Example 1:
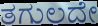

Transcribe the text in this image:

ತಗುಲದೇ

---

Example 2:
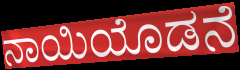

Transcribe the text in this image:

ನಾಯಿಯೊಡನೆ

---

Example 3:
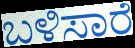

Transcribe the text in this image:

ಬಳಿಸಾರೆ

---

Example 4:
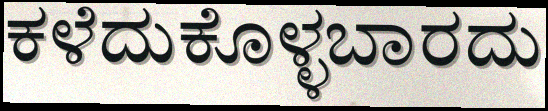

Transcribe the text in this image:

ಕಳೆದುಕೊಳ್ಳಬಾರದು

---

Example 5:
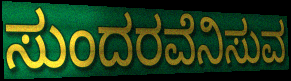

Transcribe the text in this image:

ಸುಂದರವೆನಿಸುವ